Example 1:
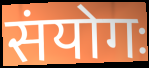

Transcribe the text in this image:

संयोगः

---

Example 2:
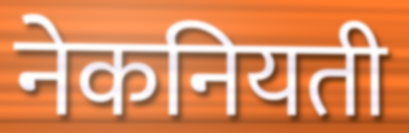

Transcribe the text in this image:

नेकनियती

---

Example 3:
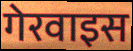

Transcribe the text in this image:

गेरवाइस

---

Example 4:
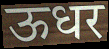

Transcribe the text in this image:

ऊधर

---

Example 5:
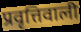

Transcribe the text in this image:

प्रवृत्तिवाली